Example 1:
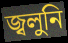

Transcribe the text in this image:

জ্বলুনি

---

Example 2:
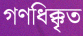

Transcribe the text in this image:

গণধিক্কৃত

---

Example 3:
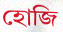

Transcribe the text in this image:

হোজি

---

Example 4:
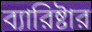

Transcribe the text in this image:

ব্যারিষ্টার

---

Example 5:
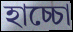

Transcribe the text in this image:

হাচ্চো